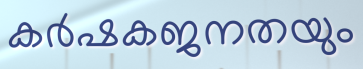
കർഷകജനതയും